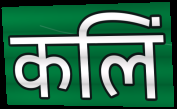
कलिं